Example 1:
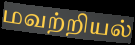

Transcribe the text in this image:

மவற்றியல்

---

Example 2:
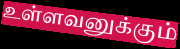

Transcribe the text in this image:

உள்ளவனுக்கும்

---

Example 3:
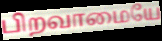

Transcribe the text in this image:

பிறவாமையே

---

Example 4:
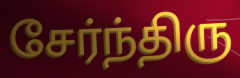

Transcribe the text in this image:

சேர்ந்திரு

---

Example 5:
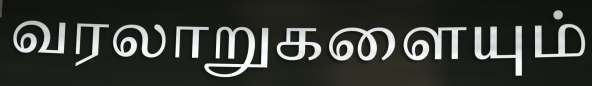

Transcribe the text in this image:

வரலாறுகளையும்